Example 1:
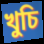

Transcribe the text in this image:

খুচি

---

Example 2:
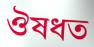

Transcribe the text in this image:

ঔষধত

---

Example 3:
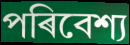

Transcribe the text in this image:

পৰিবেশ্য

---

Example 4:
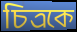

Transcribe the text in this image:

চিত্ৰকে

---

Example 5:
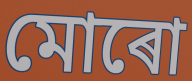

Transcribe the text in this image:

মোৰো